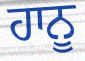
ਹਾਨੂ